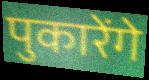
पुकारेंगे